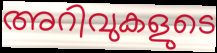
അറിവുകളുടെ